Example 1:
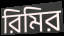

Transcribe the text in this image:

রিমির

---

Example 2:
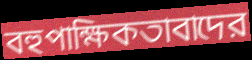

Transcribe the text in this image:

বহুপাক্ষিকতাবাদের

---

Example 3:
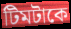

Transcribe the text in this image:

টিমটাকে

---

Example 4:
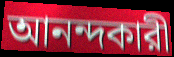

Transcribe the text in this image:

আনন্দকারী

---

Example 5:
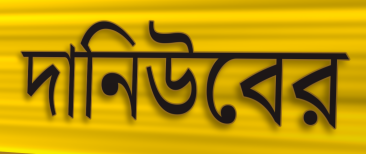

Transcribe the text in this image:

দানিউবের